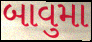
બાવુમા